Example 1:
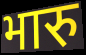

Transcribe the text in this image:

भारु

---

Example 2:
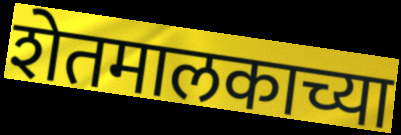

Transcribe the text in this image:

शेतमालकाच्या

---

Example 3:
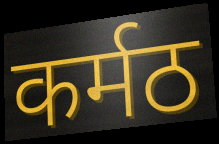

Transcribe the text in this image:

कर्मठ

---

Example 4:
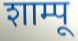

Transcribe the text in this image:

शाम्पू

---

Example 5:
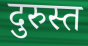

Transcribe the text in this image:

दुरुस्त